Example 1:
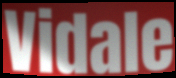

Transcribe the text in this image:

Vidale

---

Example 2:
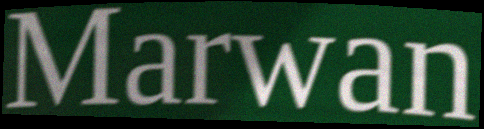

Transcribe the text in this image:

Marwan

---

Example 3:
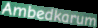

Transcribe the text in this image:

Ambedkarum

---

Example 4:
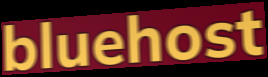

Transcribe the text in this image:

bluehost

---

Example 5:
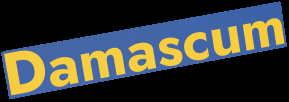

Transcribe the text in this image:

Damascum